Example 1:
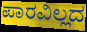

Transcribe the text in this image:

ಪಾರವಿಲ್ಲದ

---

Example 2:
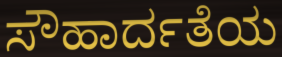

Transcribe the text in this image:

ಸೌಹಾರ್ದತೆಯ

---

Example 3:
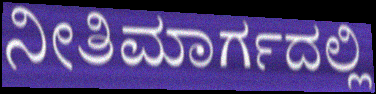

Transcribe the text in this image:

ನೀತಿಮಾರ್ಗದಲ್ಲಿ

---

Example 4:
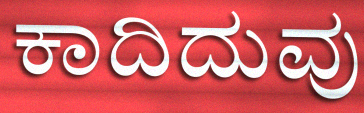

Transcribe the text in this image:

ಕಾದಿದುವು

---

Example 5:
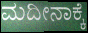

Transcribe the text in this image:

ಮದೀನಾಕ್ಕೆ